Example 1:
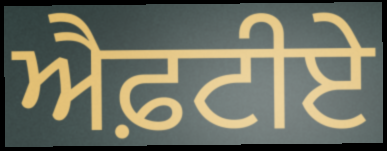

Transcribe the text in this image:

ਐਫ਼ਟੀਏ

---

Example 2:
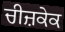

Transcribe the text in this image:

ਚੀਜ਼ਕੇਕ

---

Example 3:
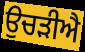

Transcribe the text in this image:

ਉਚੜੀਐ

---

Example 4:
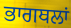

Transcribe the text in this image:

ਭਾਗਥਲਾਂ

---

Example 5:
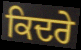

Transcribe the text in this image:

ਕਿਦਰੇ